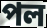
পল